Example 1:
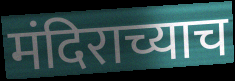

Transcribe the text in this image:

मंदिराच्याच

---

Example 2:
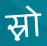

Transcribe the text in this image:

स्नो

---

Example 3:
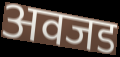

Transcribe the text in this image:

अवजड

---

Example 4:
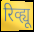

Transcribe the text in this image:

रिव्ह्यू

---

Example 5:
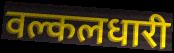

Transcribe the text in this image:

वल्कलधारी